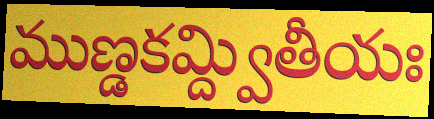
ముణ్డకమ్ద్వితీయః